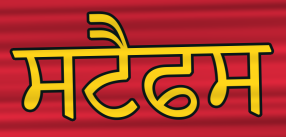
ਸਟੈਫਸ